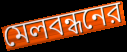
মেলবন্ধনের